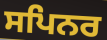
ਸਪਿਨਰ